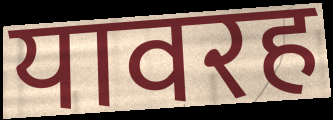
यावरह